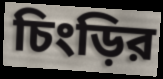
চিংড়ির